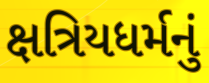
ક્ષત્રિયધર્મનું